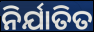
ନିର୍ଯାତିତ